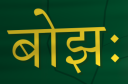
बोझः